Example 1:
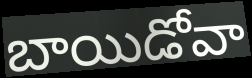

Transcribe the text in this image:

బాయిడోవా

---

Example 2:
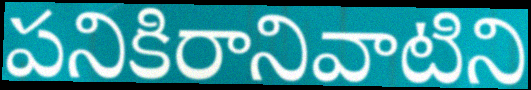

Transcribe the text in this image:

పనికిరానివాటిని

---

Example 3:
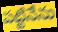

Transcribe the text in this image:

పట్టినేను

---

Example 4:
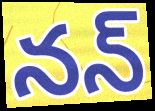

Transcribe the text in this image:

నన్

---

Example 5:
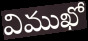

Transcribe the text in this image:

విముఖో